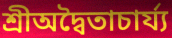
শ্রীঅদ্বৈতাচার্য্য